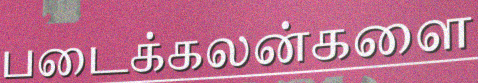
படைக்கலன்களை